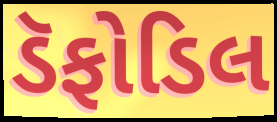
ડૅફોડિલ